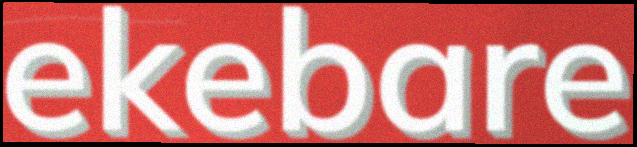
ekebare